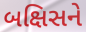
બક્ષિસને